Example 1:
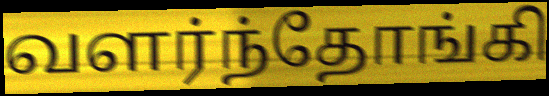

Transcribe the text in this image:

வளர்ந்தோங்கி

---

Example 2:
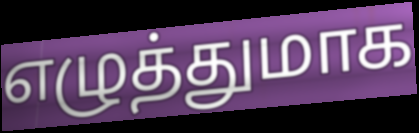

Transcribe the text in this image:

எழுத்துமாக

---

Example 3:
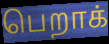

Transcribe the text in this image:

பெறாக்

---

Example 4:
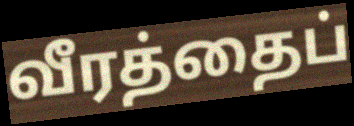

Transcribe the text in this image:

வீரத்தைப்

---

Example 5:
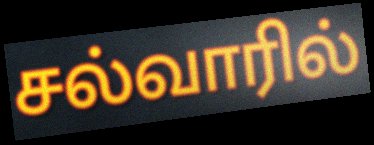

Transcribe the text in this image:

சல்வாரில்